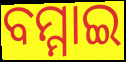
ବମ୍ମାଇ